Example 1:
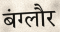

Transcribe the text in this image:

बंग्लौर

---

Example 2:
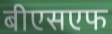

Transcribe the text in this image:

बीएसएफ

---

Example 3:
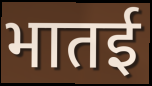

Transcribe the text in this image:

भातई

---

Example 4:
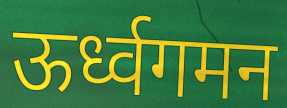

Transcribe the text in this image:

ऊर्ध्वगमन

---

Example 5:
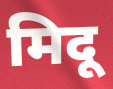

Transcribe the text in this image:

मिदू